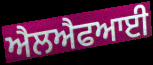
ਐਲਐਫਆਈ